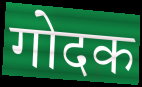
गोदक